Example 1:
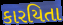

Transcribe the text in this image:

કારયિતા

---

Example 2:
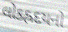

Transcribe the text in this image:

લોકહ્રદયનો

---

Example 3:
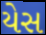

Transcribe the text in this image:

યેસ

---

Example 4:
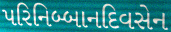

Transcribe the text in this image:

પરિનિબ્બાનદિવસેન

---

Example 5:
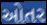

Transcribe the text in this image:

ઓતર